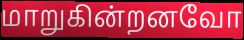
மாறுகின்றனவோ